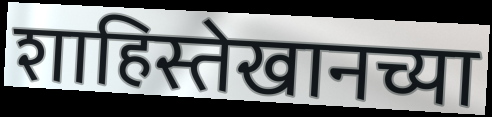
शाहिस्तेखानच्या